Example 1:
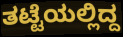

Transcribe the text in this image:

ತಟ್ಟೆಯಲ್ಲಿದ್ದ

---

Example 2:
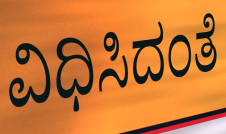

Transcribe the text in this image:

ವಿಧಿಸಿದಂತೆ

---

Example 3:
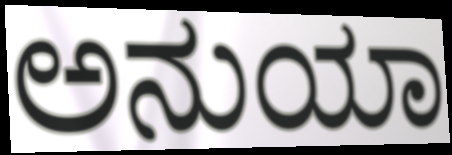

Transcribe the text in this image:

ಅನುಯಾ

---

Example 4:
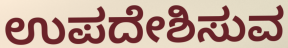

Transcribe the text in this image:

ಉಪದೇಶಿಸುವ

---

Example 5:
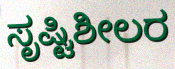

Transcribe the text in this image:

ಸೃಷ್ಟಿಶೀಲರ